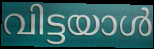
വിട്ടയാൾ